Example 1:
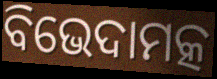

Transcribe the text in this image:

ବିଭେଦାମତ୍କ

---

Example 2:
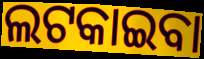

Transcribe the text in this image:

ଲଟକାଇବା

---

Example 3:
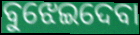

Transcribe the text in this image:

ବୁଝେଇଦେବା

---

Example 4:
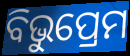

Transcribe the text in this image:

ବିଭୁପ୍ରେମ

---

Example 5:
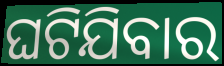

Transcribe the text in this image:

ଘଟିଯିବାର